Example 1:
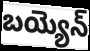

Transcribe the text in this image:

బయ్యెన్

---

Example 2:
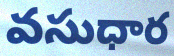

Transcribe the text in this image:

వసుధార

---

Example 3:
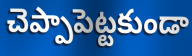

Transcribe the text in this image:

చెప్పాపెట్టకుండా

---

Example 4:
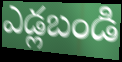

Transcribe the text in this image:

ఎడ్లబండి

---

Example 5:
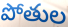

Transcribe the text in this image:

పోతుల